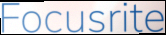
Focusrite